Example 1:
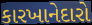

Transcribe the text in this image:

કારખાનેદારો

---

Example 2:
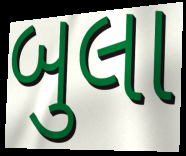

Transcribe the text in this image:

બુલા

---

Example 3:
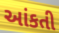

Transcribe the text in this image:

આંકતી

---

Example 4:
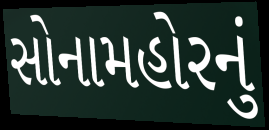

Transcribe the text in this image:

સોનામહોરનું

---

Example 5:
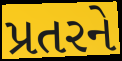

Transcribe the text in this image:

પ્રતરને